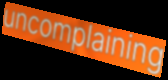
uncomplaining